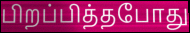
பிறப்பித்தபோது